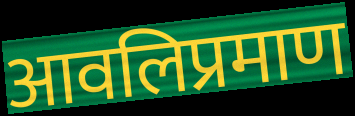
आवलिप्रमाण